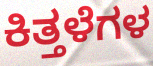
ಕಿತ್ತಳೆಗಳ